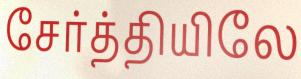
சேர்த்தியிலே